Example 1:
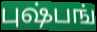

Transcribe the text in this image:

புஷ்பங்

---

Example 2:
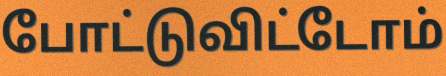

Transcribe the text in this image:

போட்டுவிட்டோம்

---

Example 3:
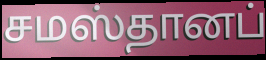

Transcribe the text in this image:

சமஸ்தானப்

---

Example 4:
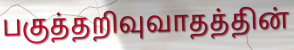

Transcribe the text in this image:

பகுத்தறிவுவாதத்தின்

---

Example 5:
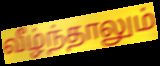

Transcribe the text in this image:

வீழ்ந்தாலும்